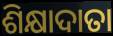
ଶିକ୍ଷାଦାତା